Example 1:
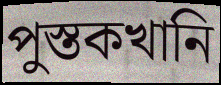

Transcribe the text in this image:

পুস্তকখানি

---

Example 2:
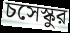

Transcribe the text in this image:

চসেস্কুর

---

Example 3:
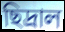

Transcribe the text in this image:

ছিদ্রাল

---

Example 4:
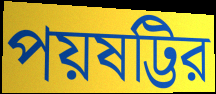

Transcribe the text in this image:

পয়ষট্টির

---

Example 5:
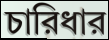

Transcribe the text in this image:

চারিধার